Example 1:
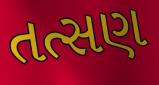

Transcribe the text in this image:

તત્સણ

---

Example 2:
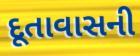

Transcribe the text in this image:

દૂતાવાસની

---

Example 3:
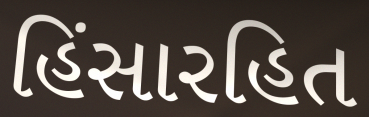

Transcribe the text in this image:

હિંસારહિત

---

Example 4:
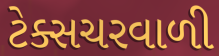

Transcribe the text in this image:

ટેક્સચરવાળી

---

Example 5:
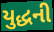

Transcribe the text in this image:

યુદ્ધની